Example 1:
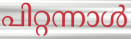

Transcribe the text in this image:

പിറ്റന്നാൾ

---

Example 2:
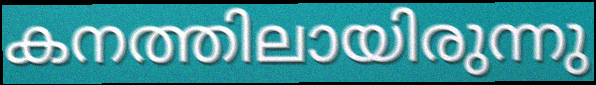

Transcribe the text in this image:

കനത്തിലായിരുന്നു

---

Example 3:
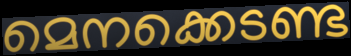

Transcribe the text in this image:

മെനക്കെടണ്ട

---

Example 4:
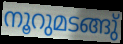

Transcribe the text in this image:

നൂറുമടങ്ങു്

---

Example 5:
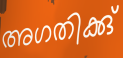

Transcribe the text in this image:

അഗതിക്കു്